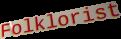
Folklorist